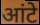
आंटे